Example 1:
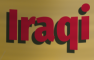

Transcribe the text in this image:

Iraqi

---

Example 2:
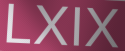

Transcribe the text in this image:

LXIX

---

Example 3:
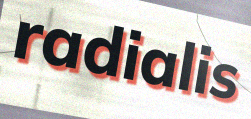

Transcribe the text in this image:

radialis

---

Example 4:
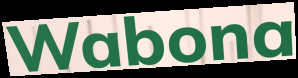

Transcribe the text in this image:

Wabona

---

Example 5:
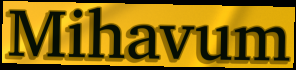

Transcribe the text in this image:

Mihavum